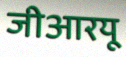
जीआरयू